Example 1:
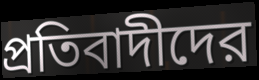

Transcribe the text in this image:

প্রতিবাদীদের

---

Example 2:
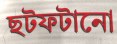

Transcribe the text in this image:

ছটফটানো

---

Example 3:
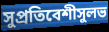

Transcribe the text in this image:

সুপ্রতিবেশীসুলভ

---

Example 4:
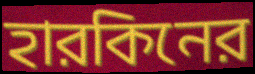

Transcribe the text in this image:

হারকিনের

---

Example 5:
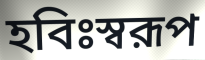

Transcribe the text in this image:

হবিঃস্বরূপ